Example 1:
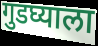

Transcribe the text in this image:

गुडघ्याला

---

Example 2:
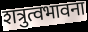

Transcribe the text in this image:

शत्रुत्वभावना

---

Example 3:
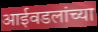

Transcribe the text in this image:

आईवडलांच्या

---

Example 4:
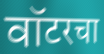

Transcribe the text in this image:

वॉटरचा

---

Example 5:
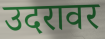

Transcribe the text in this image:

उदरावर